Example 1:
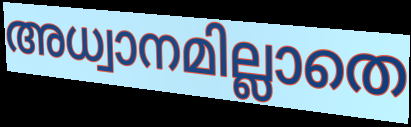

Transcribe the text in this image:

അധ്വാനമില്ലാതെ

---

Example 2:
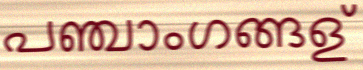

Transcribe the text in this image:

പഞ്ചാംഗങ്ങള്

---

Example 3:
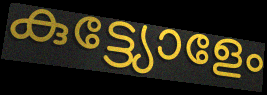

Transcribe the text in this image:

കുട്ട്യോളേം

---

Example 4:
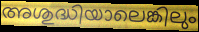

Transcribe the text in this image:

അശുദ്ധിയാലെങ്കിലും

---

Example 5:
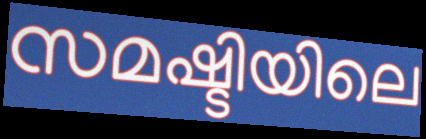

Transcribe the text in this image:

സമഷ്ടിയിലെ